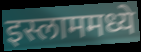
इस्लाममध्ये